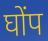
घोंप